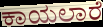
ಕಾಯಲಾರೆ